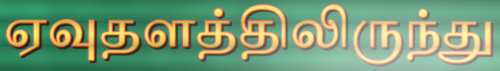
ஏவுதளத்திலிருந்து